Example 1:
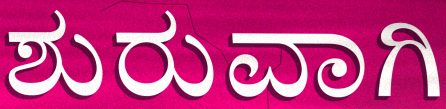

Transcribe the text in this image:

ಶುರುವಾಗಿ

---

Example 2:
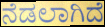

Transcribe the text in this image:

ನೆಡಲಾಗಿದೆ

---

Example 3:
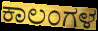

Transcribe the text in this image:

ಕಾಲಂಗಳ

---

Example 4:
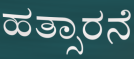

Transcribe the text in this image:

ಹತ್ಸಾರನೆ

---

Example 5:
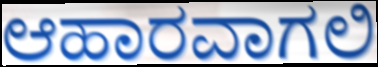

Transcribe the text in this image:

ಆಹಾರವಾಗಲಿ